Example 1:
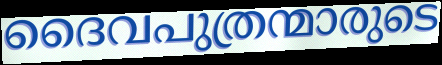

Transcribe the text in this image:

ദൈവപുത്രന്മാരുടെ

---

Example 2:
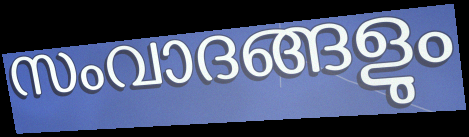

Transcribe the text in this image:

സംവാദങ്ങളും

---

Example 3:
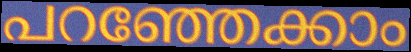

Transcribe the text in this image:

പറഞ്ഞേക്കാം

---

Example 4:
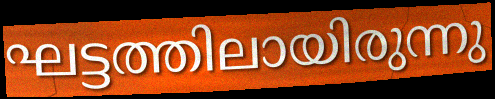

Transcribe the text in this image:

ഘട്ടത്തിലായിരുന്നു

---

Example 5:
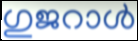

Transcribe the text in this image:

ഗുജറാൾ